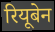
रियूबेन